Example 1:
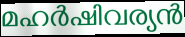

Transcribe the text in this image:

മഹർഷിവര്യൻ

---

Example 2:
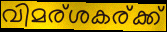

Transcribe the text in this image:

വിമര്ശകര്ക്ക്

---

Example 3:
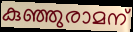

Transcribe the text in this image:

കുഞ്ഞുരാമന്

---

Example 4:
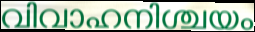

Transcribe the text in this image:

വിവാഹനിശ്ചയം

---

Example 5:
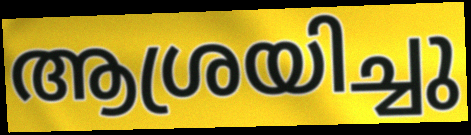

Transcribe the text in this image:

ആശ്രയിച്ചു